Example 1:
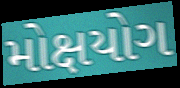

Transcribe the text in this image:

મોક્ષયોગ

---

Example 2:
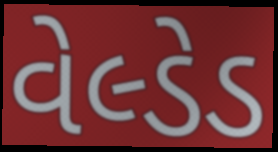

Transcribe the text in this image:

વેલ્ડેડ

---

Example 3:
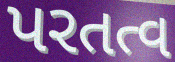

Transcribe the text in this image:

પરતત્વ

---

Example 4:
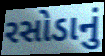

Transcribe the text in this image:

રસોડાનું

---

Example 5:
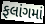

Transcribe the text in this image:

ફલાંગમાં